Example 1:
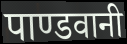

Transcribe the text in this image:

पाण्डवानी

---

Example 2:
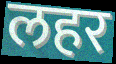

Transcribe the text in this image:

लहर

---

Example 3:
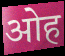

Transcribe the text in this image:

ओह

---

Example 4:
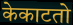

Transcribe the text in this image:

केकाटतो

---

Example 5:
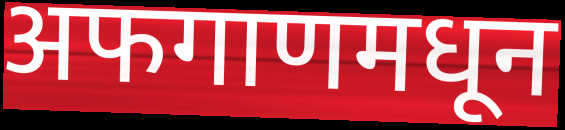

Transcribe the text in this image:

अफगाणमधून